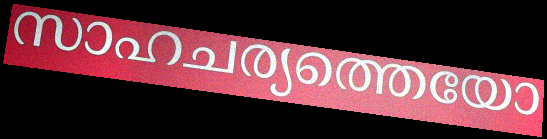
സാഹചര്യത്തെയോ